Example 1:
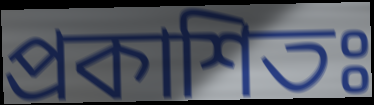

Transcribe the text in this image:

প্রকাশিতঃ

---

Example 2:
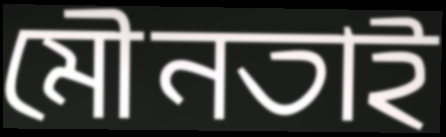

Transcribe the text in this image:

মৌনতাই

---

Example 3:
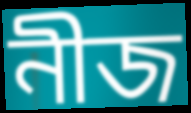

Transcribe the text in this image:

নীজ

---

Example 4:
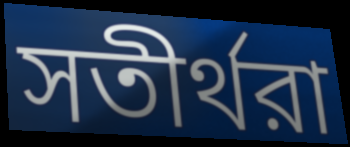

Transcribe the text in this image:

সতীর্থরা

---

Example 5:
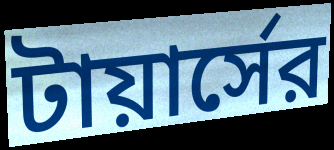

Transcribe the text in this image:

টায়ার্সের